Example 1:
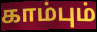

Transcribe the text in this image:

காம்பும்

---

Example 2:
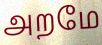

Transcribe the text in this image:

அறமே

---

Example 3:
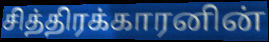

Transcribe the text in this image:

சித்திரக்காரனின்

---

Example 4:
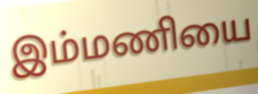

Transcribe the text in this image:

இம்மணியை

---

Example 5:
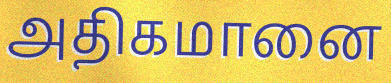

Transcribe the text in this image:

அதிகமானை